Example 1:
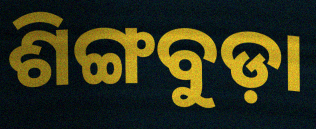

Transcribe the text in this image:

ଶିଙ୍ଗବୁଡ଼ା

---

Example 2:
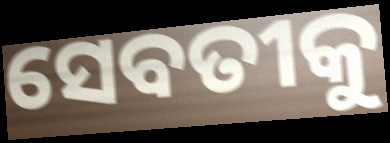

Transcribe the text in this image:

ସେବତୀକୁ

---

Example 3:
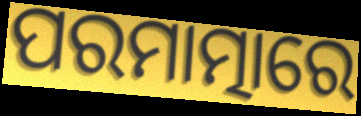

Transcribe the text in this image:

ପରମାତ୍ମାରେ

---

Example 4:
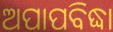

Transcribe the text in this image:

ଅପାପବିଦ୍ଧା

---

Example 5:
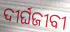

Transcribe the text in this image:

ଦୀର୍ଘଜୀବୀ